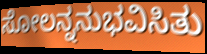
ಸೋಲನ್ನನುಭವಿಸಿತು